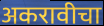
अकरावीचा